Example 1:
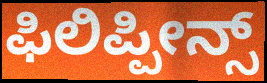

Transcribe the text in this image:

ಫಿಲಿಪ್ಪೀನ್ಸ್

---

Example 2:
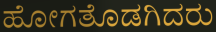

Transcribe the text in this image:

ಹೋಗತೊಡಗಿದರು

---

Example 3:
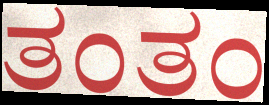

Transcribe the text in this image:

ತಂತಂ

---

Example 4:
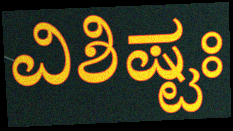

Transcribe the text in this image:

ವಿಶಿಷ್ಟಃ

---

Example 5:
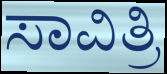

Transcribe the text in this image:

ಸಾವಿತ್ರಿ